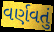
વર્ણવતું